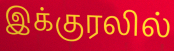
இக்குரலில்